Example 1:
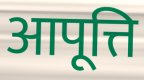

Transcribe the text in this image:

आपूत्ति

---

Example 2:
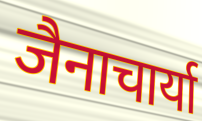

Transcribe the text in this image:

जैनाचार्या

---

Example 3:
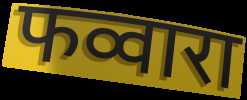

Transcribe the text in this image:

फव्वारा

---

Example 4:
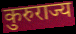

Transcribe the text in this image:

कुरुराज्य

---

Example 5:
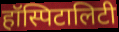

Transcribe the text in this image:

हॉस्पिटालिटी